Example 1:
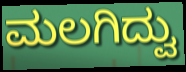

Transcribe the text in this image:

ಮಲಗಿದ್ವು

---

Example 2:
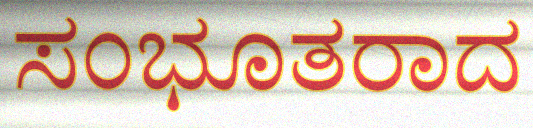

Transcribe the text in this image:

ಸಂಭೂತರಾದ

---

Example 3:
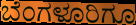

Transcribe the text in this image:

ಬೆಂಗಳೂರಿಗೂ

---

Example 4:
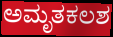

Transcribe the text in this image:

ಅಮೃತಕಲಶ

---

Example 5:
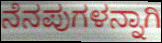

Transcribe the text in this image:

ನೆನಪುಗಳನ್ನಾಗಿ